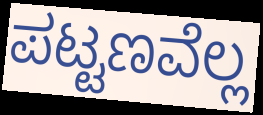
ಪಟ್ಟಣವೆಲ್ಲ